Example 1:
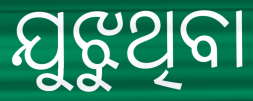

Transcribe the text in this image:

ଯୁଝୁଥିବା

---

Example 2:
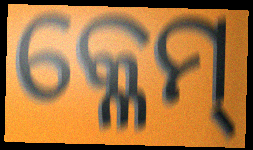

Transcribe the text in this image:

କ୍ଳେମ୍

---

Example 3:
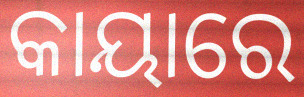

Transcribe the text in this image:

କାୟାରେ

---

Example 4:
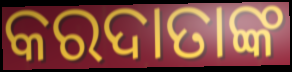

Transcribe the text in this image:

କରଦାତାଙ୍କ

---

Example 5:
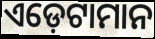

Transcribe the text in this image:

ଏଡ଼େଟାମାନ